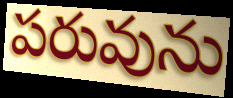
పరువును